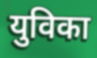
युविका